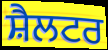
ਸ਼ੈਲਟਰ